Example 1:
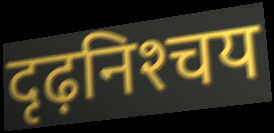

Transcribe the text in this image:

दृढ़निश्चय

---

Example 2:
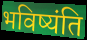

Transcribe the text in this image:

भविष्यंति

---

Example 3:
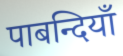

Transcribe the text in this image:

पाबन्दियाँ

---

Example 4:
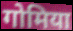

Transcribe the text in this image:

गोमिया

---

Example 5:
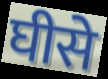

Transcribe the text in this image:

घीसे